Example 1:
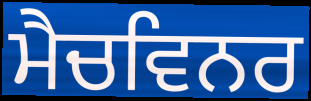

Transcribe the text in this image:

ਮੈਚਵਿਨਰ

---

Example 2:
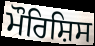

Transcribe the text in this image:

ਮੌਰਿਸ਼ਿਸ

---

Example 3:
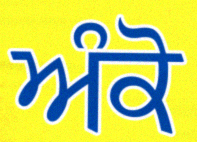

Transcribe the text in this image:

ਅੰਕੋ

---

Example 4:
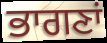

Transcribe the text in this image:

ਭਾਗਣਾਂ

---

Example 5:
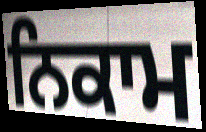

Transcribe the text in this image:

ਨਿਕਾਮ